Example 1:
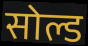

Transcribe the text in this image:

सोल्ड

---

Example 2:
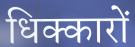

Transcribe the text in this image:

धिक्कारों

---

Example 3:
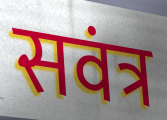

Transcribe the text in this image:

सवंत्र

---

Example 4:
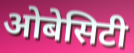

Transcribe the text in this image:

ओबेसिटी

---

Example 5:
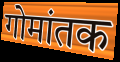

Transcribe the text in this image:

गोमांतक